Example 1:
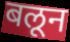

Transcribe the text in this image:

बलून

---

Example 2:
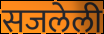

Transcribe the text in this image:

सजलेली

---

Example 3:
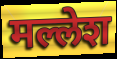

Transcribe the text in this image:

मल्लेश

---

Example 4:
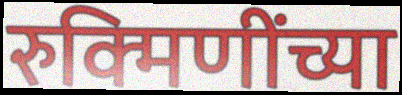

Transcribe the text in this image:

रुक्मिणींच्या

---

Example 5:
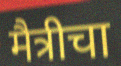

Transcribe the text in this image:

मैत्रीचा